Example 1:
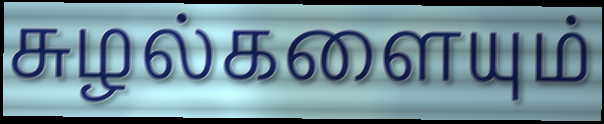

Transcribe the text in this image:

சுழல்களையும்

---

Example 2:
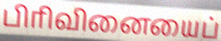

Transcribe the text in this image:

பிரிவினையைப்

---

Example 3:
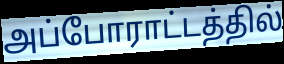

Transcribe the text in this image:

அப்போராட்டத்தில்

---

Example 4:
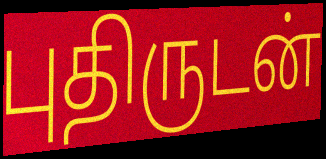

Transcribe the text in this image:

புதிருடன்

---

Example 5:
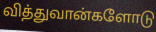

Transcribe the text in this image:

வித்துவான்களோடு